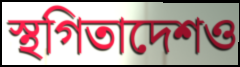
স্থগিতাদেশও